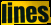
lines